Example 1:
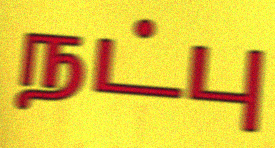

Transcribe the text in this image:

நட்பு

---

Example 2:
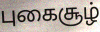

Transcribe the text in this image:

புகைசூழ்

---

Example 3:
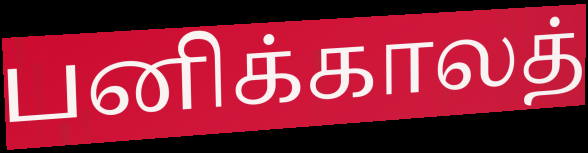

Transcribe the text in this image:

பனிக்காலத்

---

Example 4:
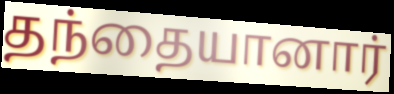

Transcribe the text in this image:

தந்தையானார்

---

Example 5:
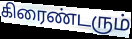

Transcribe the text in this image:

கிரைண்டரும்